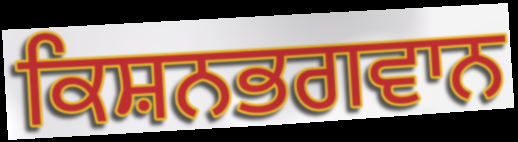
ਕਿਸ਼ਨਭਗਵਾਨ